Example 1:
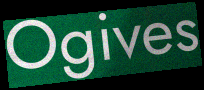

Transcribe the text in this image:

Ogives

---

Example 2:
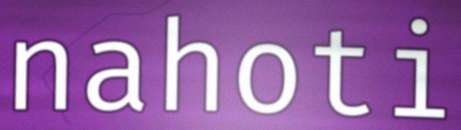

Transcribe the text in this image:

nahoti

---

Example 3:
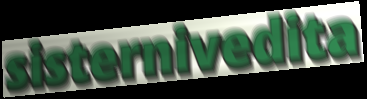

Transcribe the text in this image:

sisternivedita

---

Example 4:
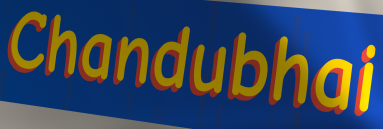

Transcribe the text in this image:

Chandubhai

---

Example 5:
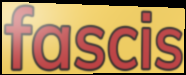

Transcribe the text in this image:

fascis